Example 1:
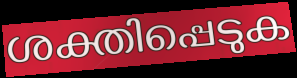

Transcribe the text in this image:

ശക്തിപ്പെടുക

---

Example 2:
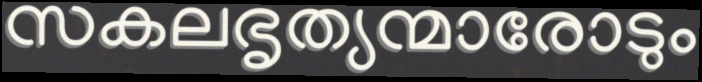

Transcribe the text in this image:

സകലഭൃത്യന്മാരോടും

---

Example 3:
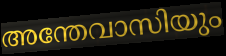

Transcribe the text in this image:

അന്തേവാസിയും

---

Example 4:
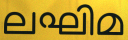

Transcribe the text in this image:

ലഘിമ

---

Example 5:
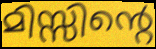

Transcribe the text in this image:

മിസ്സിന്റെ